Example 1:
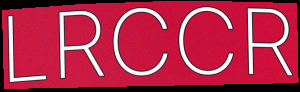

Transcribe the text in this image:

LRCCR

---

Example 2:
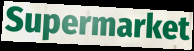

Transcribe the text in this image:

Supermarket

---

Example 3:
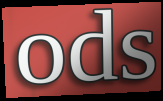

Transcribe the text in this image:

ods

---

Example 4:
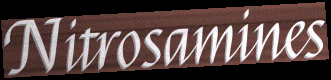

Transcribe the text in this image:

Nitrosamines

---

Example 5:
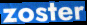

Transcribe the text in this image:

zoster